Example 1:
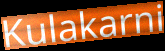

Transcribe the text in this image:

Kulakarni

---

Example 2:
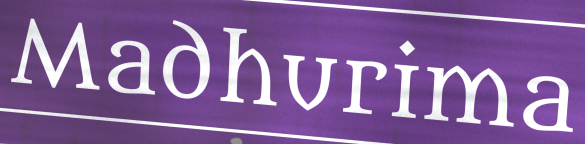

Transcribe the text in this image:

Madhurima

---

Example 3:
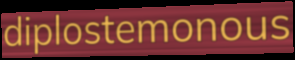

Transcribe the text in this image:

diplostemonous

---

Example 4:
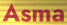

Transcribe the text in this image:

Asma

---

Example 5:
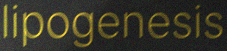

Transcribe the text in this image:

lipogenesis